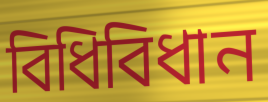
বিধিবিধান